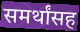
समर्थांसह